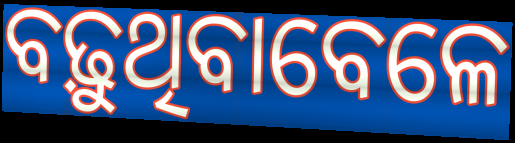
ବଢ଼ୁଥିବାବେଳେ